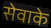
सेवाके